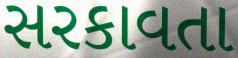
સરકાવતા